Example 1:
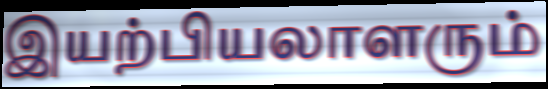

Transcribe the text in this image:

இயற்பியலாளரும்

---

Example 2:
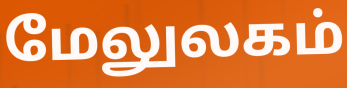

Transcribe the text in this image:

மேலுலகம்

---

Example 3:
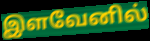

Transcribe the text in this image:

இளவேனில்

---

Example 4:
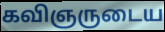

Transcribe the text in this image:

கவிஞருடைய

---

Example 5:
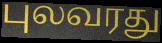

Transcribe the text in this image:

புலவரது